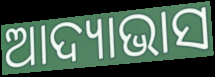
ଆଦ୍ୟାଭାସ